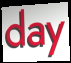
day